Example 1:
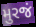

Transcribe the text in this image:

મુરજં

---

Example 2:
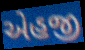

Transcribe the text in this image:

એહજી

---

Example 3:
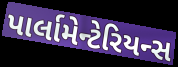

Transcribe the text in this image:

પાર્લામેન્ટેરિયન્સ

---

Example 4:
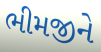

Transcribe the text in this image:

ભીમજીને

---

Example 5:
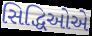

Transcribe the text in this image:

સિદ્ધિઓએ